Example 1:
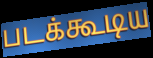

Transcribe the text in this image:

படக்கூடிய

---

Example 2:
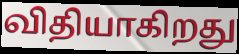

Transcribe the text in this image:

விதியாகிறது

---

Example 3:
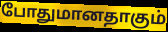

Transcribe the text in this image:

போதுமானதாகும்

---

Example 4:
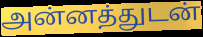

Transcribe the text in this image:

அன்னத்துடன்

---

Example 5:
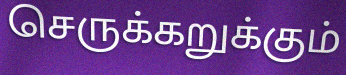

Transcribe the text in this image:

செருக்கறுக்கும்